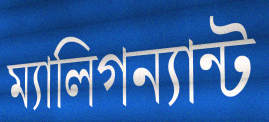
ম্যালিগন্যান্ট